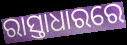
ରାସ୍ତାଧାରରେ